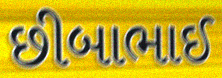
છીબાભાઈ